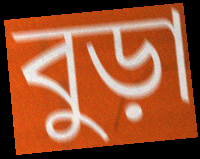
বুড়া